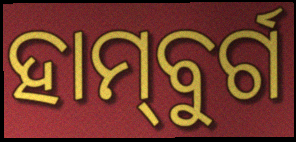
ହାମ୍‌ବୁର୍ଗ